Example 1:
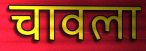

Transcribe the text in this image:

चावला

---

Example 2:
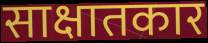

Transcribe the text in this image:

साक्षातकार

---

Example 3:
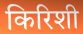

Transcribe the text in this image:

किरिशी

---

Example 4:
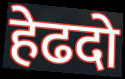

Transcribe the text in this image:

हेढदो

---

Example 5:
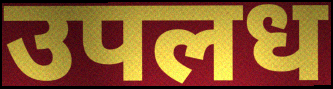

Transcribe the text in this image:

उपलध